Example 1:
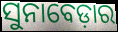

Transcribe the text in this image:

ସୁନାବେଡ଼ାର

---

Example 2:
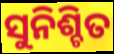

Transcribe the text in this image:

ସୁନିଶ୍ଚିତ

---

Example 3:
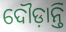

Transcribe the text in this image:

ଦୌଡ଼ାନ୍ତି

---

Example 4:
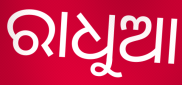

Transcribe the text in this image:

ରାଧୁଆ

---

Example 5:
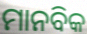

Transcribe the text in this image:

ମାନବିକ